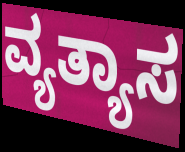
ವ್ಯತ್ಯಾಸ